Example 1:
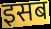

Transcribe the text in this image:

इसब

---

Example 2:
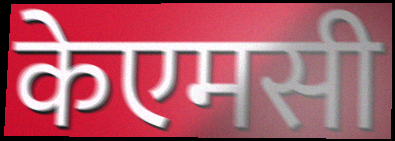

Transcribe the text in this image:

केएमसी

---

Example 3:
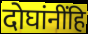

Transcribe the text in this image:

दोघांनींहि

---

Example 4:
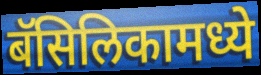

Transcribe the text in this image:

बॅसिलिकामध्ये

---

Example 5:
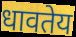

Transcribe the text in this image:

धावतेय